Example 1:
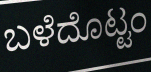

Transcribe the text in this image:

ಬಳೆದೊಟ್ಟಂ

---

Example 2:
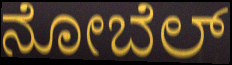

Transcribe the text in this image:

ನೋಬೆಲ್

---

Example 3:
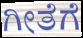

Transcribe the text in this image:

ಗೀತೆಗೆ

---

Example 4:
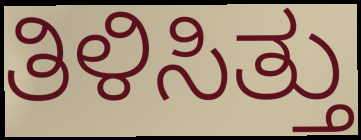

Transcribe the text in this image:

ತಿಳಿಸಿತ್ತು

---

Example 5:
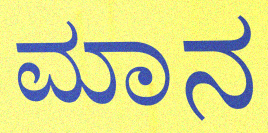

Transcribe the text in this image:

ಮಾನ